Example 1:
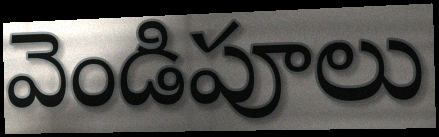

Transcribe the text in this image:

వెండిపూలు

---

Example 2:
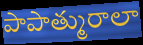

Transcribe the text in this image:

పాపాత్మురాలా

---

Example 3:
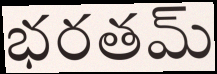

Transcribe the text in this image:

భరతమ్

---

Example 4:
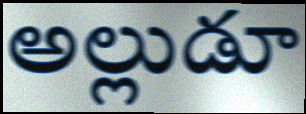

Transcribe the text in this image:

అల్లుడూ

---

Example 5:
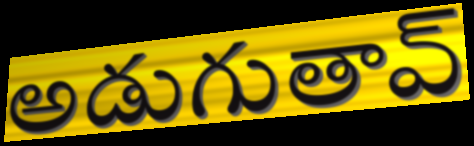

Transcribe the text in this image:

అడుగుతావ్